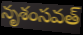
నృశంసవత్